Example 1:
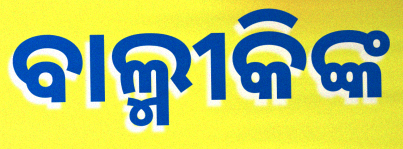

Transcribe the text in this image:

ବାଲ୍ମୀକିଙ୍କ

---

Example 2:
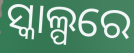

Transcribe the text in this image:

ସ୍କାଲ୍ପରେ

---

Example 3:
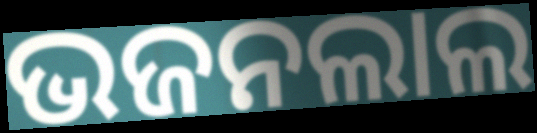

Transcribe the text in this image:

ଭଜନଲାଲ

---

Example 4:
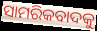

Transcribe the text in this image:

ସାମରିକବାଦକୁ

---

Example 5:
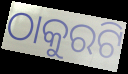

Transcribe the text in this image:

ଠାକୁରଟି